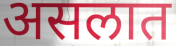
असलात